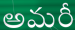
అమరీ